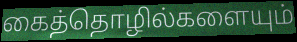
கைத்தொழில்களையும்